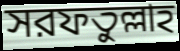
সরফতুল্লাহ